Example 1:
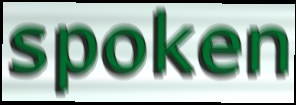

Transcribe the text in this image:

spoken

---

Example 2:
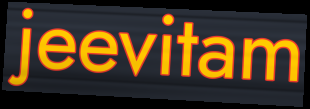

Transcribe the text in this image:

jeevitam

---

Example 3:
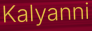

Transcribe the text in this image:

Kalyanni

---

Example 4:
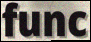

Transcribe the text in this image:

func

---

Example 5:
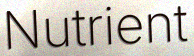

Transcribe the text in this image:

Nutrient